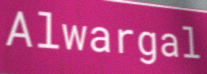
Alwargal